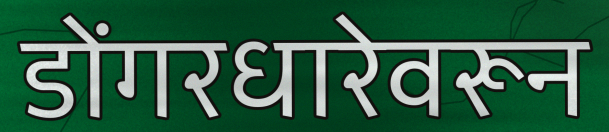
डोंगरधारेवरून